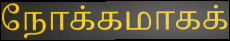
நோக்கமாகக்